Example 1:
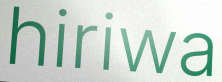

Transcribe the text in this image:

hiriwa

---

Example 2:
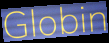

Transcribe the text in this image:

Globin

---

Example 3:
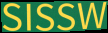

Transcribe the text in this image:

SISSW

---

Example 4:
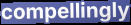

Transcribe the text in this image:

compellingly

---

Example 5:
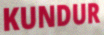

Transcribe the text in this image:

KUNDUR